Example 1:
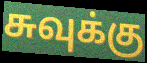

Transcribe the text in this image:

சுவுக்கு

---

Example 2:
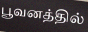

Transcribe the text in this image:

பூவனத்தில்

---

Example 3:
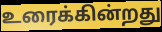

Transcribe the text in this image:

உரைக்கின்றது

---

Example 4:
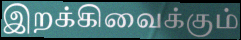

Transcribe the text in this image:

இறக்கிவைக்கும்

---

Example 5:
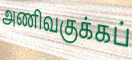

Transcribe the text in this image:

அணிவகுக்கப்